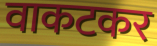
वाकटकर